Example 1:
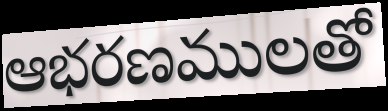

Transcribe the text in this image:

ఆభరణములతో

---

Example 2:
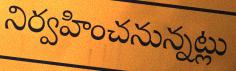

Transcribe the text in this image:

నిర్వహించనున్నట్లు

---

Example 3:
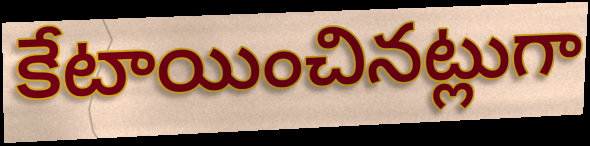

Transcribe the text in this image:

కేటాయించినట్లుగా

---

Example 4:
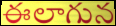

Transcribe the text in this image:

ఈలాగున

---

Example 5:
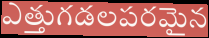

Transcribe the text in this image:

ఎత్తుగడలపరమైన